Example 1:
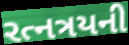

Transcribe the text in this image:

રત્નત્રયની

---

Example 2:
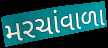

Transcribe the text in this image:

મરચાંવાળા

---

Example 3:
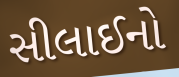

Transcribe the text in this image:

સીલાઈનો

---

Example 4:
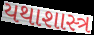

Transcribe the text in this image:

યથાશાસ્‍ત્ર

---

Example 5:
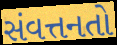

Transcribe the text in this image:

સંવત્તનતો